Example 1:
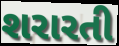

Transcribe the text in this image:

શરારતી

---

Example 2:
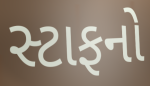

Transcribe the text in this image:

સ્ટાફનો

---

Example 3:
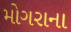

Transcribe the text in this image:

મોગરાના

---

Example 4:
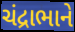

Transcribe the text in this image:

ચંદ્રાભાને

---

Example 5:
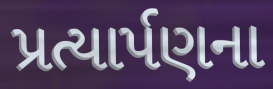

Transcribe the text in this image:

પ્રત્યાર્પણના